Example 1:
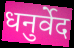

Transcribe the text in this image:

धनुर्वेद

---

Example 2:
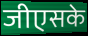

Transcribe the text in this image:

जीएसके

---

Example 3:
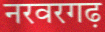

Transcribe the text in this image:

नरवरगढ़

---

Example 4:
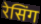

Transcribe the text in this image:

रेसिंग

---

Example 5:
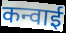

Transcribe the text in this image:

कन्वाई